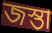
জস্তা